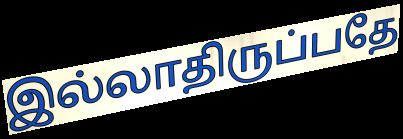
இல்லாதிருப்பதே